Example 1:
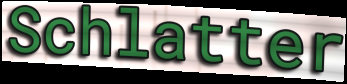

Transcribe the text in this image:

Schlatter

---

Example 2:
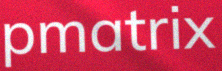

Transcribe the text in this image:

pmatrix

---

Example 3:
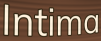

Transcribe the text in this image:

Intima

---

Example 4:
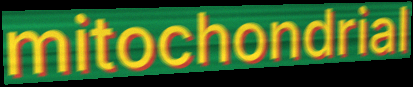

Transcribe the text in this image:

mitochondrial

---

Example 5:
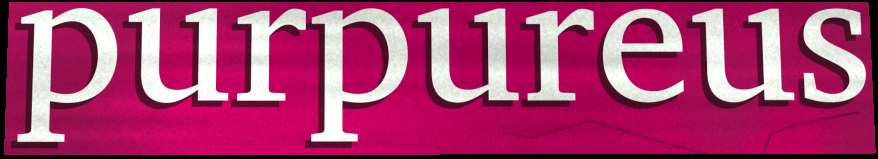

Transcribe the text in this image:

purpureus